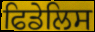
ਫਿਡੇਲਿਸ